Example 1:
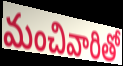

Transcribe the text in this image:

మంచివారితో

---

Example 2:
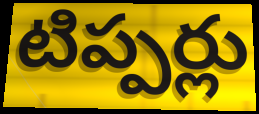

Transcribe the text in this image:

టిప్పర్లు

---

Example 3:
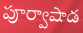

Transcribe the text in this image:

పూర్వాషాడ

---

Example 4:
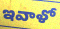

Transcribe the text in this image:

ఇవాళో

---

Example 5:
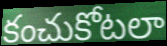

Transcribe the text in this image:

కంచుకోటలా